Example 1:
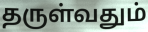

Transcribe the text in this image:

தருள்வதும்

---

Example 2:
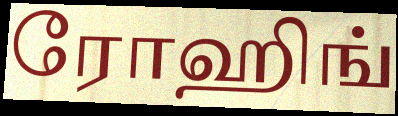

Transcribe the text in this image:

ரோஹிங்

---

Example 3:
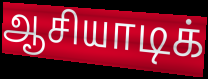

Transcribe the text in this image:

ஆசியாடிக்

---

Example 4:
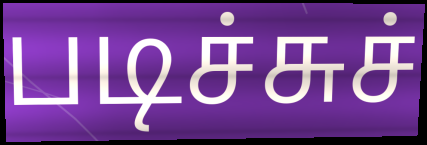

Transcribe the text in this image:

படிச்சுச்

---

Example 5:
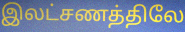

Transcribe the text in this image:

இலட்சணத்திலே